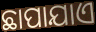
ଛାପାଯାଏ